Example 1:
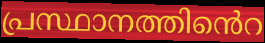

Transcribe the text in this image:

പ്രസ്ഥാനത്തിൻെറ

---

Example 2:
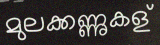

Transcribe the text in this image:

മുലക്കണ്ണുകള്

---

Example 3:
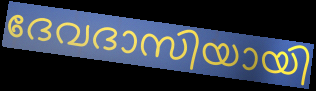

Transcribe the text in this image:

ദേവദാസിയായി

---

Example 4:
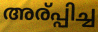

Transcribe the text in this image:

അര്പ്പിച്ച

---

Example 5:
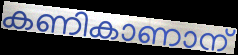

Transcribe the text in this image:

കണികാണാന്